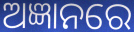
ଅଜ୍ଞାନରେ